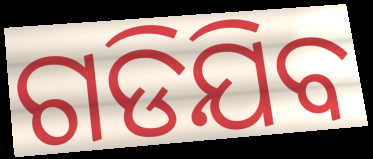
ଗଡିଯିବ